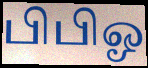
பிபிஓ